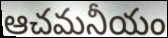
ఆచమనీయం